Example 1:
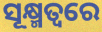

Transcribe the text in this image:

ସୂକ୍ଷ୍ମତ୍ୱରେ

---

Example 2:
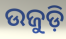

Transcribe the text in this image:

ଉଜୁଡ଼ି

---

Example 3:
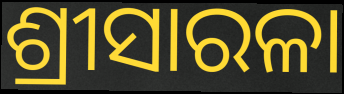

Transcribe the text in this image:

ଶ୍ରୀସାରଳା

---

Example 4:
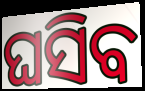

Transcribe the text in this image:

ଘସିବ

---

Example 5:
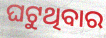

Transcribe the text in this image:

ଘଟୁଥିବାର